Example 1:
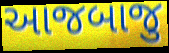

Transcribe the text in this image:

આજબાજુ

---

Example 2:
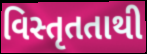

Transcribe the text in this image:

વિસ્તૃતતાથી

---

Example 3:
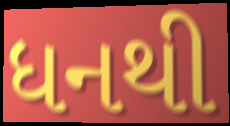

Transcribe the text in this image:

ધનથી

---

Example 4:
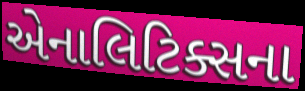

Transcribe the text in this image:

એનાલિટિક્સના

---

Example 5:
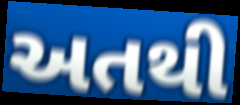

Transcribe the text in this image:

અતથી